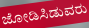
ಜೋಡಿಸಿಡುವರು